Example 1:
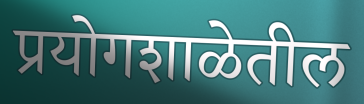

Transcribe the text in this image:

प्रयोगशाळेतील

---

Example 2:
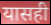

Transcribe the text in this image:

यासही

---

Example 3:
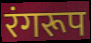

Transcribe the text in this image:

रंगरूप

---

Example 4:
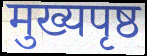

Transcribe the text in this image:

मुख्यपृष्ठ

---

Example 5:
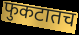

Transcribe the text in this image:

फुकटातच